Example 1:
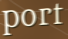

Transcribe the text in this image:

port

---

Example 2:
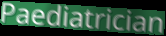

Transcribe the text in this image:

Paediatrician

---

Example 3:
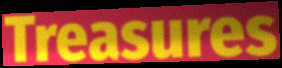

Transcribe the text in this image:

Treasures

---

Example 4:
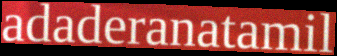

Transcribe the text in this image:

adaderanatamil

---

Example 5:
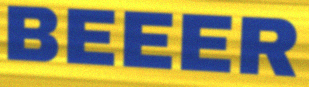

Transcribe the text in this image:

BEEER